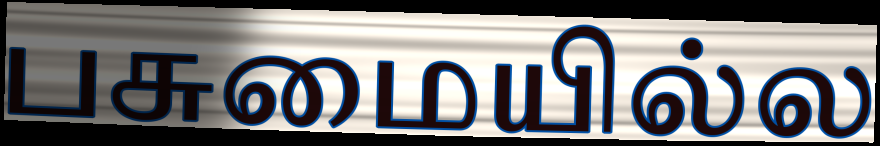
பசுமையில்ல